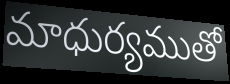
మాధుర్యముతో